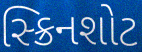
સ્ક્રિનશોટ